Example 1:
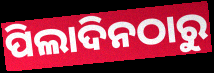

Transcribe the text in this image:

ପିଲାଦିନଠାରୁ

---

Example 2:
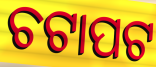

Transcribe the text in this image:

ଚଟାପଟ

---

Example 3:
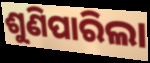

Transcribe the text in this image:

ଶୁଣିପାରିଲା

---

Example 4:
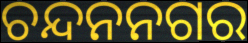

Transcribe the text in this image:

ଚନ୍ଦନନଗର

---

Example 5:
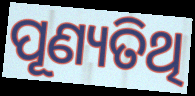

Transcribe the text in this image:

ପୂଣ୍ୟତିଥି